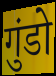
गुंडो